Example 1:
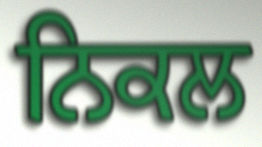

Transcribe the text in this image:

ਨਿਕਲ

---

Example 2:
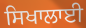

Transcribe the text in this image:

ਸਿਖਾਲਾਈ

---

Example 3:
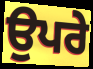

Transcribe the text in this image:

ਉਪਰੇ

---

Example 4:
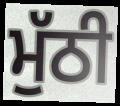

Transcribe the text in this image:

ਮੁੱਠੀ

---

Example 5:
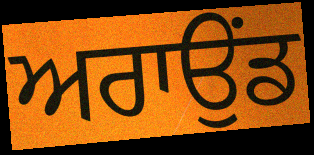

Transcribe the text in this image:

ਅਰਾਉਂਡ